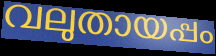
വലുതായപ്പം